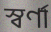
স্বর্ণা